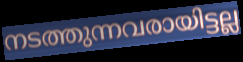
നടത്തുന്നവരായിട്ടല്ല